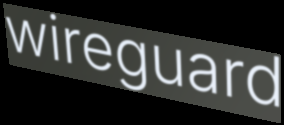
wireguard